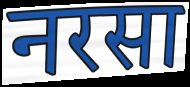
नरसा